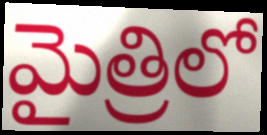
మైత్రిలో